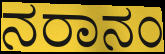
ನರಾನಂ